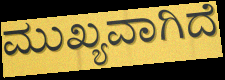
ಮುಖ್ಯವಾಗಿದೆ